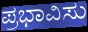
ಪ್ರಭಾವಿಸು